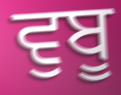
ਵੁਬੂ